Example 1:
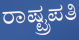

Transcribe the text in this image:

ರಾಷ್ಟ್ರಪತಿ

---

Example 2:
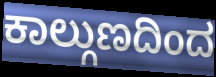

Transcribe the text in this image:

ಕಾಲ್ಗುಣದಿಂದ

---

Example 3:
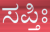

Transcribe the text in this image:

ಸಪ್ತಿಃ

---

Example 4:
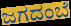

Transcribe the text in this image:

ಜಗದಂಬೆ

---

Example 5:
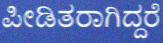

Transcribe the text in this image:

ಪೀಡಿತರಾಗಿದ್ದರೆ